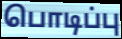
பொடிப்பு